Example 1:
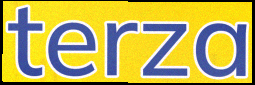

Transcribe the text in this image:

terza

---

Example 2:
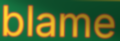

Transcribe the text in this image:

blame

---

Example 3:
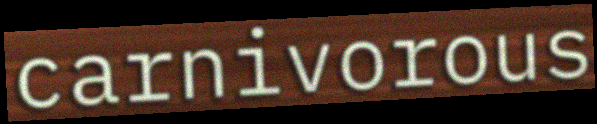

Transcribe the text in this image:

carnivorous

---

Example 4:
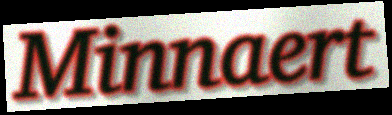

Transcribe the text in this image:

Minnaert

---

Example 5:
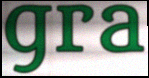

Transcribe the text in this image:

gra